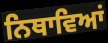
ਨਿਥਾਵਿਆਂ